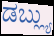
ಡಬ್ಲ್ಯು